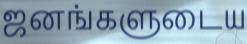
ஜனங்களுடைய